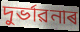
দুৰ্ভাৱনাৰ